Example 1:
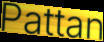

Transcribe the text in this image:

Pattan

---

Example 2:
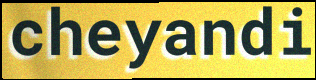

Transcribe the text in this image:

cheyandi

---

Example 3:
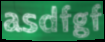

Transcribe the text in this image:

asdfgf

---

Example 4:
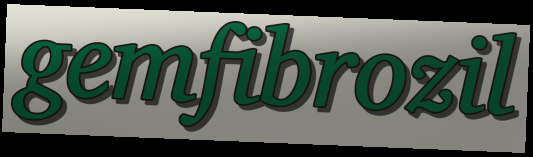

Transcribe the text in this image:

gemfibrozil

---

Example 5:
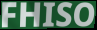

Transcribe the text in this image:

FHISO